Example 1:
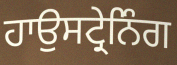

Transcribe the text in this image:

ਹਾਉਸਟ੍ਰੇਨਿੰਗ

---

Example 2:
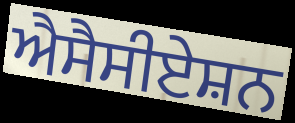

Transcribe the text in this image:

ਐਸੈਸੀਏਸ਼ਨ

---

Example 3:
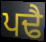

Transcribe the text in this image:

ਪਢੈ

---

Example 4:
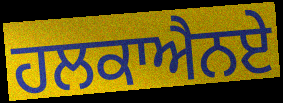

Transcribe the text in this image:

ਹਲਕਾਐਨਏ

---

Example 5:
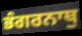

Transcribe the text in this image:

ਭੰਗਰਨਾਥੁ